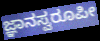
ಜ್ಞಾನಸ್ವರೂಪೀ